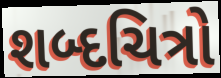
શબ્દચિત્રો